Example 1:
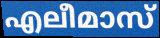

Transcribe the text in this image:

എലീമാസ്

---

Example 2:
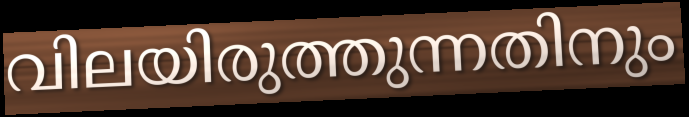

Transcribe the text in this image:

വിലയിരുത്തുന്നതിനും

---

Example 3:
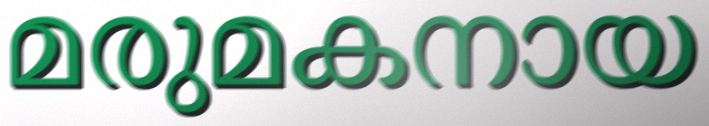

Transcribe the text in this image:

മരുമകനായ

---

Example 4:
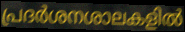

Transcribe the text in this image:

പ്രദർശനശാലകളിൽ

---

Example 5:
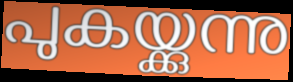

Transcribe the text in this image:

പുകയ്ക്കുന്നു